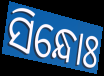
ସିନ୍ଧୋଃ